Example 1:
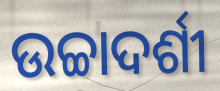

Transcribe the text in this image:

ଉଚ୍ଚାଦର୍ଶୀ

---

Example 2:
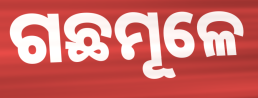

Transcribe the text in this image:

ଗଛମୂଳେ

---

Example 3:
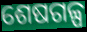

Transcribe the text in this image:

ଶେଷଗଳ୍ପ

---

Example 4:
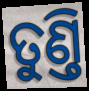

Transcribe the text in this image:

ତୁଣ୍ତି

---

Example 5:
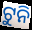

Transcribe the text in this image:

ଟୁନି